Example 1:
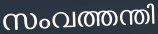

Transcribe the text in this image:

സംവത്തന്തി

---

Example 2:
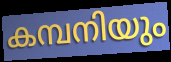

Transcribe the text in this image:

കമ്പനിയും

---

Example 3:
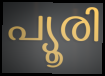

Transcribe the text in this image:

പ്യൂരി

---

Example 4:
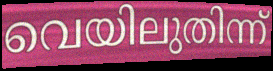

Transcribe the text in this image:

വെയിലുതിന്ന്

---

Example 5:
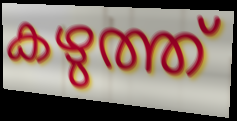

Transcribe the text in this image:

കഴുത്ത്